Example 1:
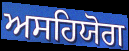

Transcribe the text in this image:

ਅਸਹਿਯੋਗ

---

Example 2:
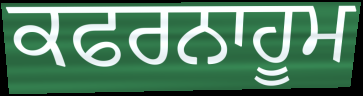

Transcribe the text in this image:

ਕਫਰਨਾਹੂਮ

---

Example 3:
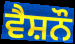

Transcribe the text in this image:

ਵੈਸ਼ਨੌ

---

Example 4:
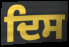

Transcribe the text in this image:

ਦਿਸ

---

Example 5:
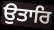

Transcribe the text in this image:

ਉਤਾਰਿ